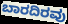
ಬಾರದಿರವು